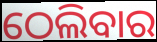
ଠେଲିବାର